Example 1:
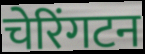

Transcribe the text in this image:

चेरिंगटन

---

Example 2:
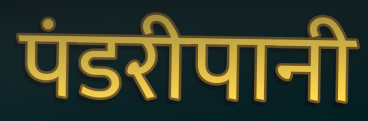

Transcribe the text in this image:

पंडरीपानी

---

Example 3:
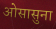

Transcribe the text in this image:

ओसासुना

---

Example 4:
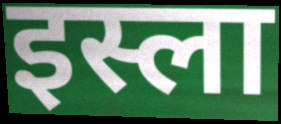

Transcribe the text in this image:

इस्ला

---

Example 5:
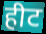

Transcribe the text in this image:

हीट